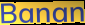
Banan